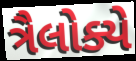
ત્રૈલોક્યે